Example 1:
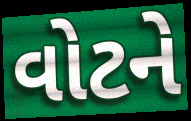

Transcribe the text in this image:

વોટને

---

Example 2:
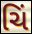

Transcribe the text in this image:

ચિં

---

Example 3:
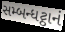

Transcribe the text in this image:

સમ્બન્ધટ્ઠાનં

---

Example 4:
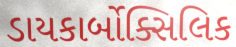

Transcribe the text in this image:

ડાયકાર્બોક્સિલિક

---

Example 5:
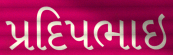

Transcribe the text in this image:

પ્રદિપભાઇ